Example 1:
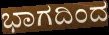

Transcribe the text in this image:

ಭಾಗದಿಂದ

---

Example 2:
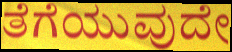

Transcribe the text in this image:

ತೆಗೆಯುವುದೇ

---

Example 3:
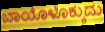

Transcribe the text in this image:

ಬಾಯೊಳೊಕ್ಕುದು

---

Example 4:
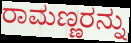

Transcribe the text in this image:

ರಾಮಣ್ಣರನ್ನು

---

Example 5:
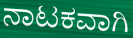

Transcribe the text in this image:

ನಾಟಕವಾಗಿ